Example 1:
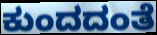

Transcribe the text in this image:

ಕುಂದದಂತೆ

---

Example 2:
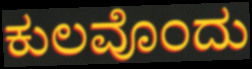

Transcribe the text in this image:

ಕುಲವೊಂದು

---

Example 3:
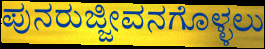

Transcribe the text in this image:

ಪುನರುಜ್ಜೀವನಗೊಳ್ಳಲು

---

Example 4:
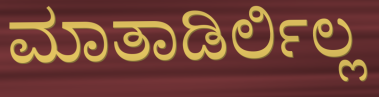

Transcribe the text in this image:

ಮಾತಾಡಿರ್ಲಿಲ್ಲ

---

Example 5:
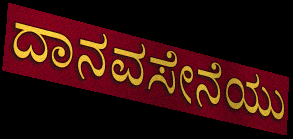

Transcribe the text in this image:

ದಾನವಸೇನೆಯು